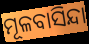
ମୂଳବାସିନ୍ଦା